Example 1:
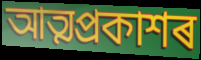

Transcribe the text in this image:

আত্মপ্ৰকাশৰ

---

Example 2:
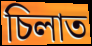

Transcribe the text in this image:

চিলাত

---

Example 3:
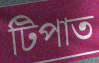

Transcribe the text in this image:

টিপাত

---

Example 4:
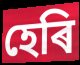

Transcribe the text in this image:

হেৰি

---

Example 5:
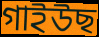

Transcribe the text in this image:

গাইউছ